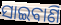
ସାଇବାଣି